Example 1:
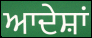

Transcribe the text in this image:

ਆਦੇਸ਼ਾਂ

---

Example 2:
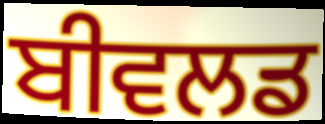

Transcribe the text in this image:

ਬੀਵਲਡ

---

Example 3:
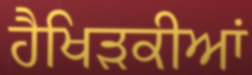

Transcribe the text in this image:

ਹੈਖਿੜਕੀਆਂ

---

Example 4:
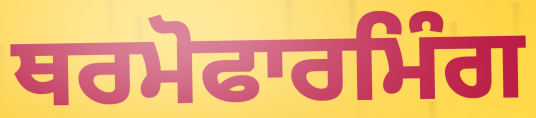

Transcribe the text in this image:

ਥਰਮੋਫਾਰਮਿੰਗ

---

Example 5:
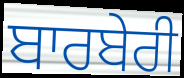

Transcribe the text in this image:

ਬਾਰਬੇਰੀ